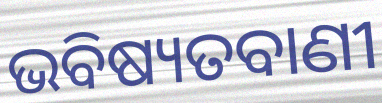
ଭବିଷ୍ୟତବାଣୀ